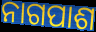
ନାଗପାଶ